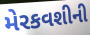
મેરકવશીની